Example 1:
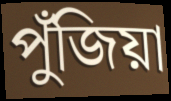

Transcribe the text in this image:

পুঁজিয়া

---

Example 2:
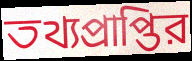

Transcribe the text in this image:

তথ্যপ্রাপ্তির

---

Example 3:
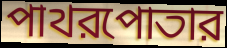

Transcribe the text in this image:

পাথরপোতার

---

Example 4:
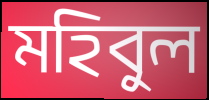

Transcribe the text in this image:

মহিবুল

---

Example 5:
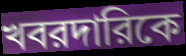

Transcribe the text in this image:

খবরদারিকে